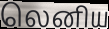
லெனிய